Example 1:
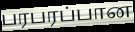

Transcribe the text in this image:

பரபரப்பான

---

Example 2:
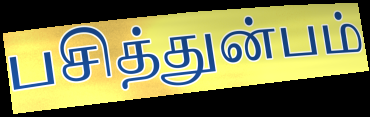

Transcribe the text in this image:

பசித்துன்பம்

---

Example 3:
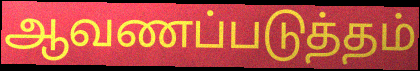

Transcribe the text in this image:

ஆவணப்படுத்தம்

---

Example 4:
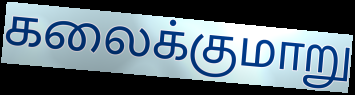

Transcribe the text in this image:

கலைக்குமாறு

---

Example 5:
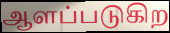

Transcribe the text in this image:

ஆளப்படுகிற